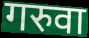
गरुवा